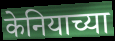
केनियाच्या